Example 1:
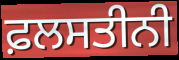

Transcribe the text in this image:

ਫ਼ਲਸਤੀਨੀ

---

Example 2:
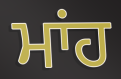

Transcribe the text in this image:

ਮਾਂਹ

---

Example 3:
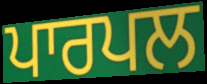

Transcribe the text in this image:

ਪਾਰਪਲ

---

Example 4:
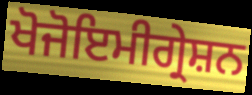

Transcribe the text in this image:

ਖੋਜੋਇਮੀਗ੍ਰੇਸ਼ਨ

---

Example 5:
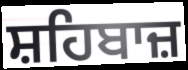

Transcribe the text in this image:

ਸ਼ਹਿਬਾਜ਼